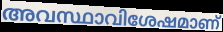
അവസ്ഥാവിശേഷമാണ്